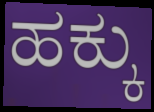
ಹಕ್ಕು